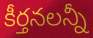
కీర్తనలన్నీ